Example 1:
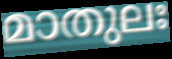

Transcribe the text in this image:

മാതുലഃ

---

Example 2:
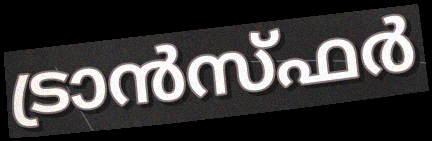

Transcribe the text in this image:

ട്രാൻസ്ഫർ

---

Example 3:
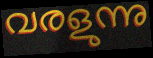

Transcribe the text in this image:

വരളുന്നു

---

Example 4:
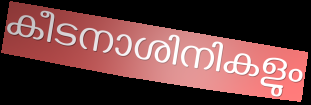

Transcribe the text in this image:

കീടനാശിനികളും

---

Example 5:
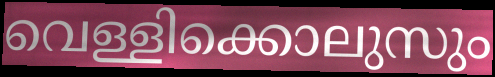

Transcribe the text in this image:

വെള്ളിക്കൊലുസും